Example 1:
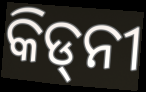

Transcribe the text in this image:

କିଡ୍‍ନୀ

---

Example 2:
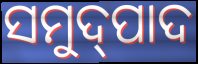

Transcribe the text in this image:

ସମୁଦ୍‌ପାଦ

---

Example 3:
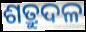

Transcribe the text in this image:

ଶତ୍ରୁଦଳ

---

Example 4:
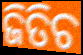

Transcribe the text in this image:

ଜିତିଚ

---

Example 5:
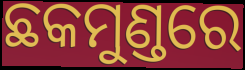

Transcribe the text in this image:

ଛକମୁଣ୍ଡରେ